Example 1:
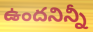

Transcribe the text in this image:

ఉందనిన్నీ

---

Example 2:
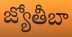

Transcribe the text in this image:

జ్యోతీబా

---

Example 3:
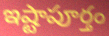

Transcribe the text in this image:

ఇష్టాపూర్తం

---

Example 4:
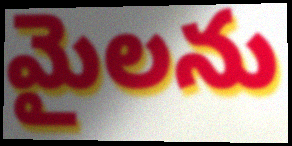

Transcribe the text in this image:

మైలను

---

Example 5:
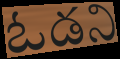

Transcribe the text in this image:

ఓడని